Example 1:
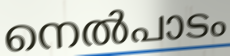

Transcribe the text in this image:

നെൽപാടം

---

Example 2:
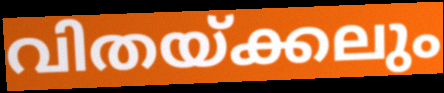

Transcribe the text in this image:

വിതയ്ക്കലും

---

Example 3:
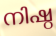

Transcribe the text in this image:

നിഷ്ഠ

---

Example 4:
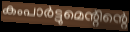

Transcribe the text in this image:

കംപാർട്ടുമെന്റിന്റെ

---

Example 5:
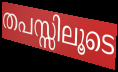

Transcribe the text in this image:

തപസ്സിലൂടെ